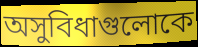
অসুবিধাগুলোকে